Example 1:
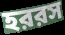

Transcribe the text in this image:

হররস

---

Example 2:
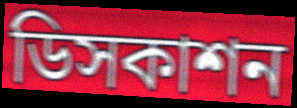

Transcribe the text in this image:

ডিসকাশন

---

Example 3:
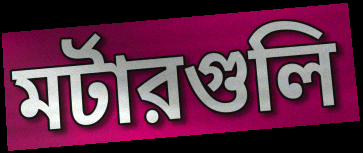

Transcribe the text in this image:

মর্টারগুলি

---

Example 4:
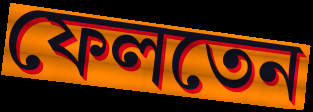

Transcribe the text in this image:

ফেলতেন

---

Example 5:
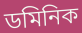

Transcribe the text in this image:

ডমিনিক